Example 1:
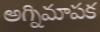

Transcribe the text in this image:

అగ్నిమాపక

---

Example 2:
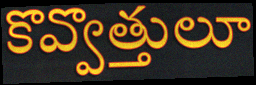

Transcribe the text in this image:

కొవ్వొత్తులూ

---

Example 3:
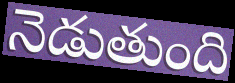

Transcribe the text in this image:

నెడుతుంది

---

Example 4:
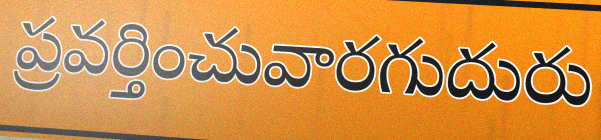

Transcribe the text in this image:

ప్రవర్తించువారగుదురు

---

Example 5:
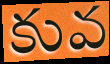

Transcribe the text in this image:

కువ